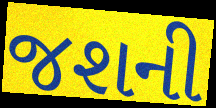
જશની